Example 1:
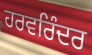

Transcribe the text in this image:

ਹਰਵਰਿੰਦਰ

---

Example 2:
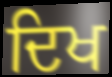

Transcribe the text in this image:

ਦਿਖ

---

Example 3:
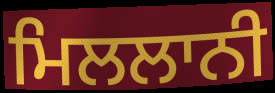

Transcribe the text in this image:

ਮਿਲਲਾਨੀ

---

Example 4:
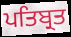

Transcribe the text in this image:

ਪਤਿਬ੍ਰਤ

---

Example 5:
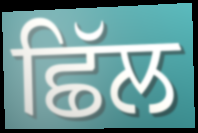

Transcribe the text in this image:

ਛਿੱਲ